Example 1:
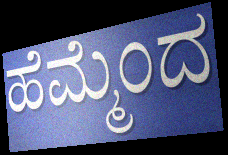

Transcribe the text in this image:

ಹೆಮ್ಮೆಂದ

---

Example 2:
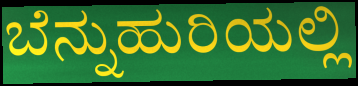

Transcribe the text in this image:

ಬೆನ್ನುಹುರಿಯಲ್ಲಿ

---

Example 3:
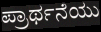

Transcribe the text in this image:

ಪ್ರಾರ್ಥನೆಯು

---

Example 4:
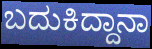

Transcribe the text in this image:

ಬದುಕಿದ್ದಾನಾ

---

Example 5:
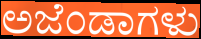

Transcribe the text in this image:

ಅಜೆಂಡಾಗಳು